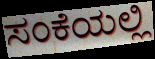
ಸಂಕೆಯಲ್ಲಿ